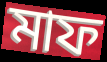
মাফ